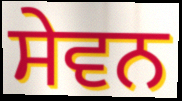
ਸੇਵਨ